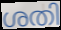
ശതി